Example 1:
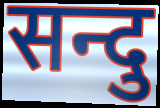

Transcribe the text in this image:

सन्दु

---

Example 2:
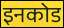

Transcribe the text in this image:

इनकोड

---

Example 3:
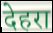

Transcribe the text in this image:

देहरा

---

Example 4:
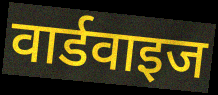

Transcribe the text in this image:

वार्डवाइज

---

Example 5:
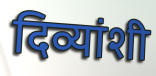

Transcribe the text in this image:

दिव्यांशी